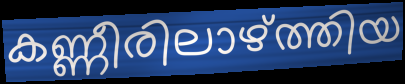
കണ്ണീരിലാഴ്ത്തിയ